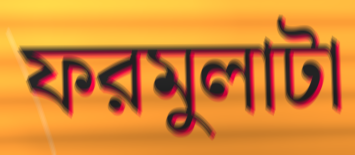
ফরমুলাটা